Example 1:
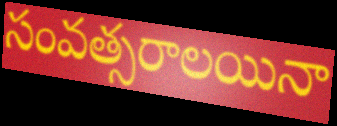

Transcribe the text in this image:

సంవత్సరాలయినా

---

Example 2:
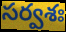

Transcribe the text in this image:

సర్వశః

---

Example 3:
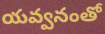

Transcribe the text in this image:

యవ్వనంతో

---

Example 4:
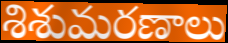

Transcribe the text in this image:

శిశుమరణాలు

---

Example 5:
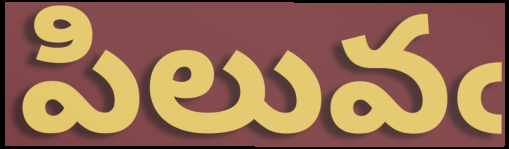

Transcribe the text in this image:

పిలువఁ